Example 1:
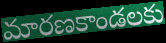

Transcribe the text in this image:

మారణకాండలకు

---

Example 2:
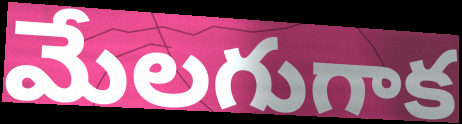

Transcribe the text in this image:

మేలగుగాక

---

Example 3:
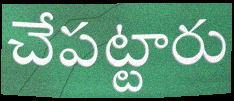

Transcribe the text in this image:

చేపట్టారు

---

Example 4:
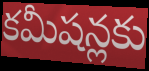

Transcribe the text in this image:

కమీషన్లకు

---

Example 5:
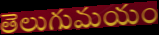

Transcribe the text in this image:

తెలుగుమయం